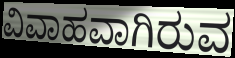
ವಿವಾಹವಾಗಿರುವ